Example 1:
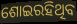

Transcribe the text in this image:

ଶୋଇରହିଥିବ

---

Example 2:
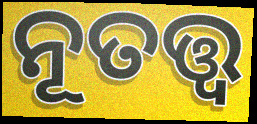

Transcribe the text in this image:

ନୂତତ୍ତ୍ବ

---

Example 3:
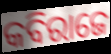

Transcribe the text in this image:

କବିରାଜେ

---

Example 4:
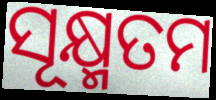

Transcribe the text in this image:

ସୂକ୍ଷ୍ମତମ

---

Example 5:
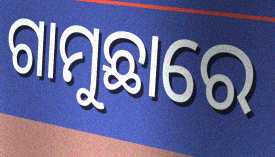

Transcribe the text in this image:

ଗାମୁଛାରେ